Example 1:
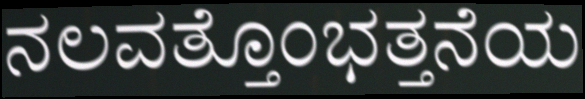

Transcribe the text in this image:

ನಲವತ್ತೊಂಭತ್ತನೆಯ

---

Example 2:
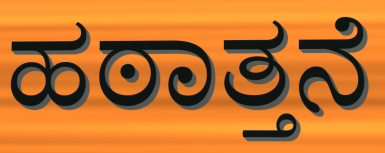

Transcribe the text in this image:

ಹಠಾತ್ತನೆ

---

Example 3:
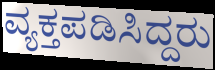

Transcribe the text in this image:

ವ್ಯಕ್ತಪಡಿಸಿದ್ದರು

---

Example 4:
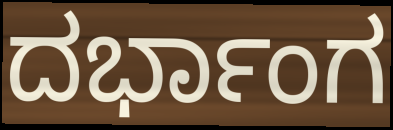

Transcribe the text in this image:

ದರ್ಭಾಂಗ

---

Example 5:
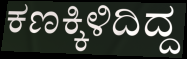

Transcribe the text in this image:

ಕಣಕ್ಕಿಳಿದಿದ್ದ